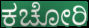
ಕಚೋರಿ